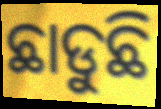
ଛାଡୁଛି